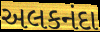
અલકનંદા